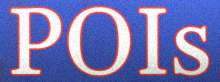
POIs